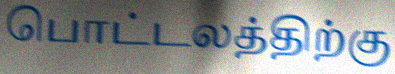
பொட்டலத்திற்கு